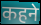
कहने